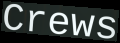
Crews